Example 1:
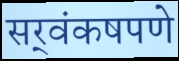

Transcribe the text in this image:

सर्वंकषपणे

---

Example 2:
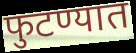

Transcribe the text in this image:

फुटण्यात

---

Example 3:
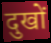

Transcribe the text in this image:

दुखों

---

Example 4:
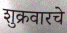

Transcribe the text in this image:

शुक्रवारचे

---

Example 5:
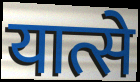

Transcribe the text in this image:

यात्से